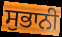
ਸੁਭਾਨੀ